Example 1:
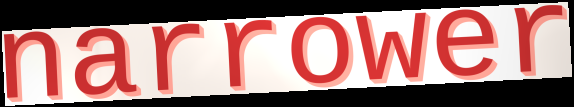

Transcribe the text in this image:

narrower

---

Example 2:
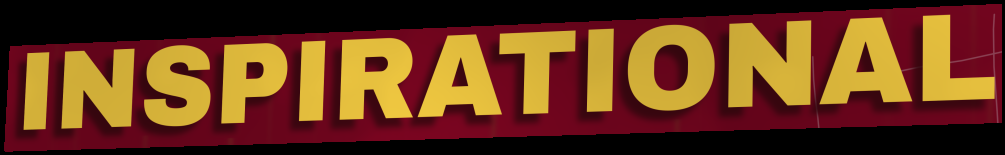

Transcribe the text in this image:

INSPIRATIONAL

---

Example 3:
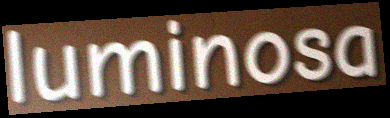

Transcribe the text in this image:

luminosa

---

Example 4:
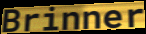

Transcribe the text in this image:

Brinner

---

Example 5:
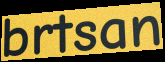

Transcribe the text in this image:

brtsan